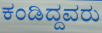
ಕಂಡಿದ್ದವರು